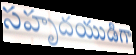
సహృదయుడిగా